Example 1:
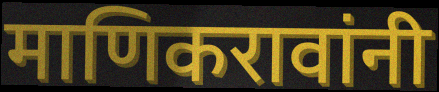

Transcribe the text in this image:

माणिकरावांनी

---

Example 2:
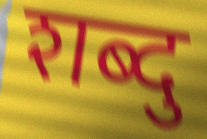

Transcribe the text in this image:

शब्दु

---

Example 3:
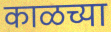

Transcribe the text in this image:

काळच्या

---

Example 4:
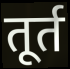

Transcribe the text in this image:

तूर्त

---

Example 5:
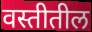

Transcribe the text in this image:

वस्तीतील